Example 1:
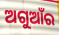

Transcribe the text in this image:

ଅଗୁଆଁର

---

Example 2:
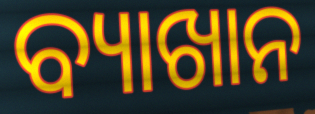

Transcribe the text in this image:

ବ୍ୟାଖାନ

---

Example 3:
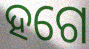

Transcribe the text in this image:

ହଗେ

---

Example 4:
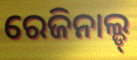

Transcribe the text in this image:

ରେଜିନାଲ୍ଡ୍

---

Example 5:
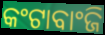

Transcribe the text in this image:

କଂଟାବାଂଜି